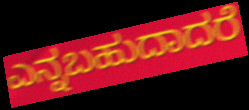
ಎನ್ನಬಹುದಾದರೆ